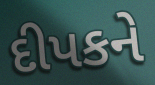
દીપકને